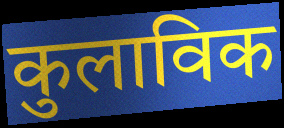
कुलाविक